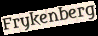
Frykenberg